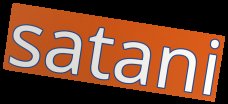
satani